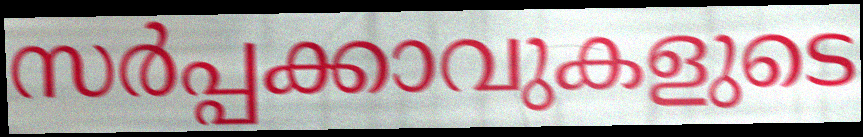
സർപ്പക്കാവുകളുടെ